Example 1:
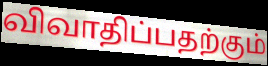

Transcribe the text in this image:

விவாதிப்பதற்கும்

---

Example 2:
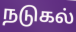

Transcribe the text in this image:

நடுகல்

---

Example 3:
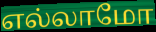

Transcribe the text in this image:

எல்லாமோ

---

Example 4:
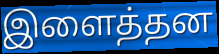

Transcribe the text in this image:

இளைத்தன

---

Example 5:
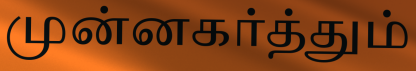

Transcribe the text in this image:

முன்னகர்த்தும்